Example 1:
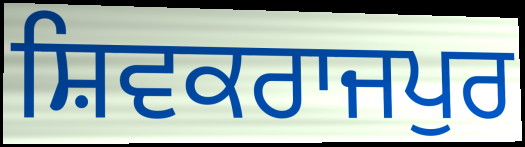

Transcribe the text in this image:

ਸ਼ਿਵਕਰਾਜਪੁਰ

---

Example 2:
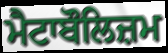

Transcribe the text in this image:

ਮੈਟਾਬੌਲਿਜ਼ਮ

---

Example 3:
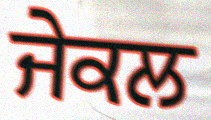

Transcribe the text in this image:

ਜੇਕਲ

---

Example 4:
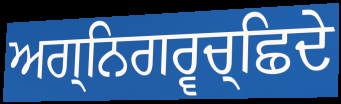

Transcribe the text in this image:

ਅਗ੍ਨਿਗਰ੍ਵਚ੍ਛਿਦੇ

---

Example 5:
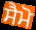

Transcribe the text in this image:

ਸੈਮੋ